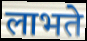
लाभते